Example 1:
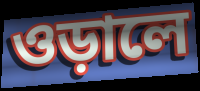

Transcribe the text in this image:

ওড়ালে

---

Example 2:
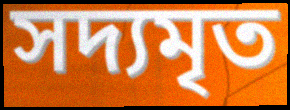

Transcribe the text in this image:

সদ্যমৃত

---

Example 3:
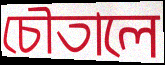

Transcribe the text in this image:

চৌতালে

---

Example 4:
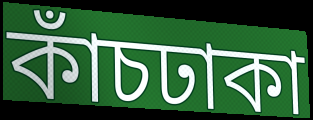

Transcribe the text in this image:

কাঁচঢাকা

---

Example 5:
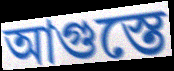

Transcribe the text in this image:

আগুস্তে